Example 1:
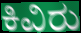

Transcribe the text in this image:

ಕಿವಿರು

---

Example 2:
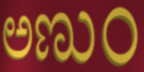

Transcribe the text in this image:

ಅಣುಂ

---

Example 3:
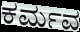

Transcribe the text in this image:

ಕರ್ಮವ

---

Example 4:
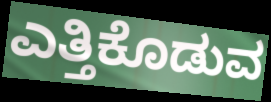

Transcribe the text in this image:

ಎತ್ತಿಕೊಡುವ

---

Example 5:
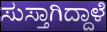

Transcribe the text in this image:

ಸುಸ್ತಾಗಿದ್ದಾಳೆ